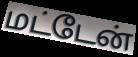
மட்டேன்